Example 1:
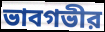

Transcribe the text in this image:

ভাবগভীর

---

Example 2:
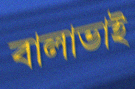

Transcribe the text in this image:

বালাভাই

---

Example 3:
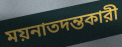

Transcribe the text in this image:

ময়নাতদন্তকারী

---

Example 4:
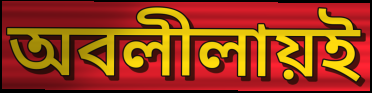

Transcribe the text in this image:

অবলীলায়ই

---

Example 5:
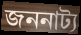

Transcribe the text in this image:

জননাট্য